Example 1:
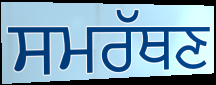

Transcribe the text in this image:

ਸਮਰੱਥਣ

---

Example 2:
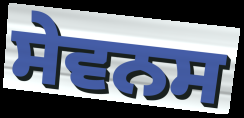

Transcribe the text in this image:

ਸੇਵਨਸ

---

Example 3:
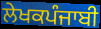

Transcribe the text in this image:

ਲੇਖਕਪੰਜਾਬੀ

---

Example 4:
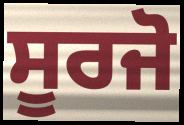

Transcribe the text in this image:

ਸੂਰਜੋ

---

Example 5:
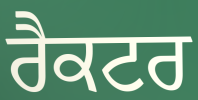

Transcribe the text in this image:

ਰੈਕਟਰ